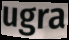
ugra